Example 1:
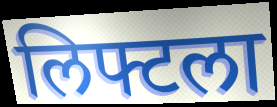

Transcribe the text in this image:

लिफ्टला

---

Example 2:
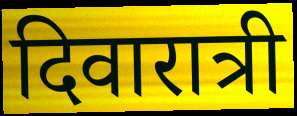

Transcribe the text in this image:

दिवारात्री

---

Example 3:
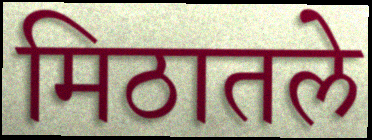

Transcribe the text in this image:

मिठातले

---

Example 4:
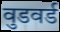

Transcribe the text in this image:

वुडवर्ड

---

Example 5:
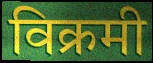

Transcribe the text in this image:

विक्रमी